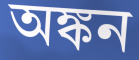
অঙ্কন